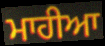
ਮਾਹੀਆ